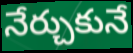
నేర్చుకునే